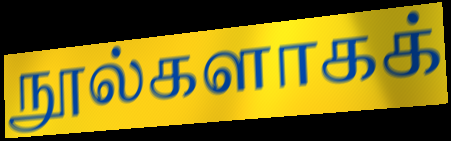
நூல்களாகக்